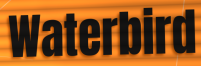
Waterbird